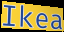
Ikea